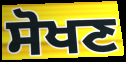
ਸੋਖਣ